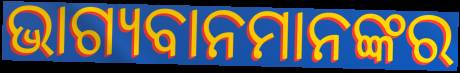
ଭାଗ୍ୟବାନମାନଙ୍କର